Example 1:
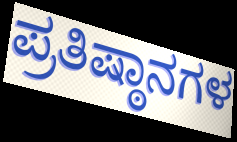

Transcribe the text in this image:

ಪ್ರತಿಷ್ಠಾನಗಳ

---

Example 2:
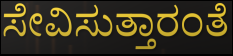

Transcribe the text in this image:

ಸೇವಿಸುತ್ತಾರಂತೆ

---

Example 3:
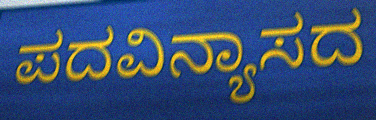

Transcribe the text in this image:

ಪದವಿನ್ಯಾಸದ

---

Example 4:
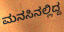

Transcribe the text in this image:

ಮನಸಿನಲ್ಲಿದ್ದ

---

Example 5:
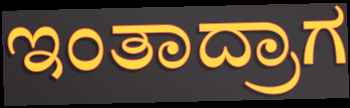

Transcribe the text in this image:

ಇಂತಾದ್ರಾಗ